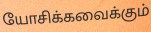
யோசிக்கவைக்கும்